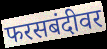
फरसबंदीवर